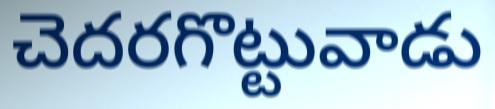
చెదరగొట్టువాడు